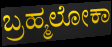
ಬ್ರಹ್ಮಲೋಕಾ